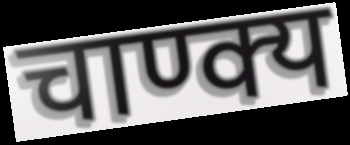
चाण्क्य